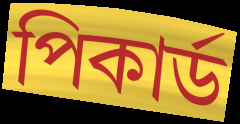
পিকার্ড